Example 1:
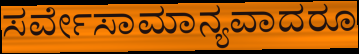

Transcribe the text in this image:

ಸರ್ವೇಸಾಮಾನ್ಯವಾದರೂ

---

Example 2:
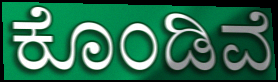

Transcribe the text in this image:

ಕೊಂಡಿವೆ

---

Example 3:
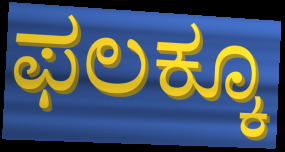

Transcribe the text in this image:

ಫಲಕ್ಕೂ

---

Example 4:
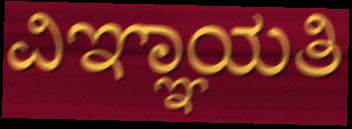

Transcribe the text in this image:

ವಿಞ್ಞಾಯತಿ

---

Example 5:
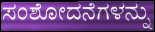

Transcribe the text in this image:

ಸಂಶೋದನೆಗಳನ್ನು